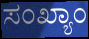
ಸಂಖ್ಯಾಂ